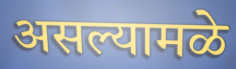
असल्यामळे